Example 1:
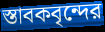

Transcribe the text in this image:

স্তাবকবৃন্দের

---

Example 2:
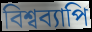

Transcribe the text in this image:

বিশ্বব্যাপি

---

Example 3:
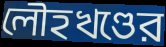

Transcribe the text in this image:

লৌহখণ্ডের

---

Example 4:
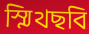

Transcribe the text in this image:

স্মিথছবি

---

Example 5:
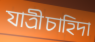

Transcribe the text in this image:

যাত্রীচাহিদা